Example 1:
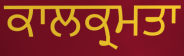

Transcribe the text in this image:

ਕਾਲਕ੍ਰਮਤਾ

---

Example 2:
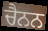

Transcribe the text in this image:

ਚੈਨਨ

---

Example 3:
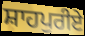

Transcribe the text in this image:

ਸ਼ਾਹਪੁਰੀਏ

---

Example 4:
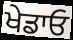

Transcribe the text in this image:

ਖੇਡਾਓ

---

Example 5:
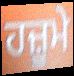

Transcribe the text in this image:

ਹਜ਼ੂਮੇ